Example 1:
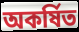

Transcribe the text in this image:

অকৰ্ষিত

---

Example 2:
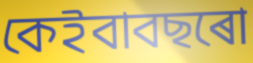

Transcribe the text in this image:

কেইবাবছৰো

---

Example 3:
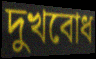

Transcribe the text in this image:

দুখবোধ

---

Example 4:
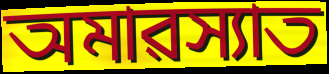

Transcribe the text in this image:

অমাৱস্যাত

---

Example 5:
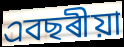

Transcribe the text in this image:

এবছৰীয়া